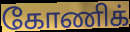
கோணிக்